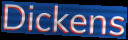
Dickens